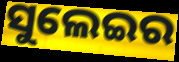
ସୁଲେଇର